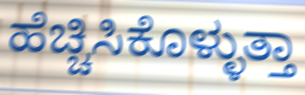
ಹೆಚ್ಚಿಸಿಕೊಳ್ಳುತ್ತಾ